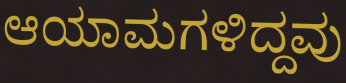
ಆಯಾಮಗಳಿದ್ದವು